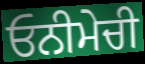
ਓਨੀਮੇਚੀ